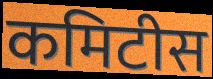
कमिटीस